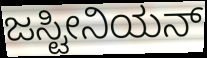
ಜಸ್ಟೀನಿಯನ್